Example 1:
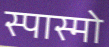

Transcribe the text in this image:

स्पास्मो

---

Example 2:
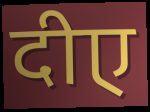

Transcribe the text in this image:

दीए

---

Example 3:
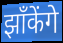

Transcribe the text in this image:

झाँकेंगे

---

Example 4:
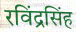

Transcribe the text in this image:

रविंद्रसिंह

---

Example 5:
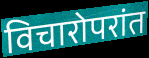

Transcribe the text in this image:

विचारोपरांत